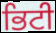
ਭਿਟੀ